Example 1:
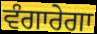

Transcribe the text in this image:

ਵੰਗਾਰੇਗਾ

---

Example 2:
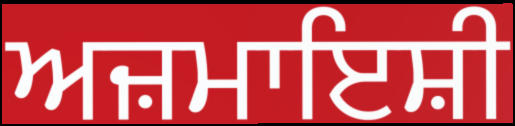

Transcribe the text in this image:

ਅਜ਼ਮਾਇਸ਼ੀ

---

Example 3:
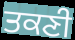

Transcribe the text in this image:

ਤਕਣੀ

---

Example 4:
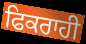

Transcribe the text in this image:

ਫਿਕਰਾਹੀ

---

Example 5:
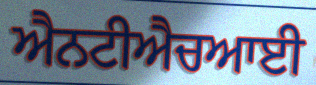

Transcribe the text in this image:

ਐਨਟੀਐਚਆਈ